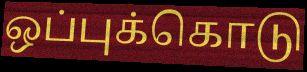
ஒப்புக்கொடு